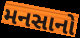
મનસાનો